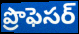
ప్రొఫెసర్